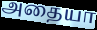
அதையா